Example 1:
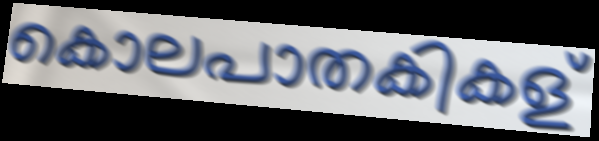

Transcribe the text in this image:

കൊലപാതകികള്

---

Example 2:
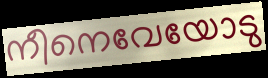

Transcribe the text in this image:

നീനെവേയോടു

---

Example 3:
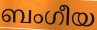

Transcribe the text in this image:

ബംഗീയ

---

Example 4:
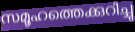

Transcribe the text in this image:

സമൂഹത്തെക്കുറിച്ചു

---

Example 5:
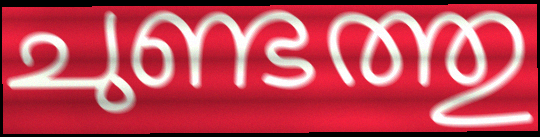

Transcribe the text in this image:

ചുണ്ടത്തു